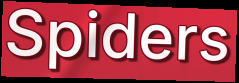
Spiders